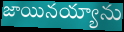
జాయినయ్యాను